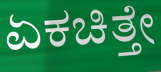
ಏಕಚಿತ್ತೇ